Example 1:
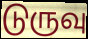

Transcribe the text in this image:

டுருவு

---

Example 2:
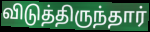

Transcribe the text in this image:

விடுத்திருந்தார்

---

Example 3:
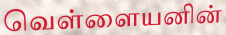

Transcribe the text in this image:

வெள்ளையனின்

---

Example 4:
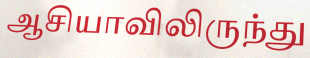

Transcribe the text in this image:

ஆசியாவிலிருந்து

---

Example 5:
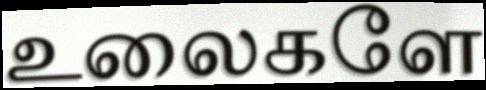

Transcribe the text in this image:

உலைகளே